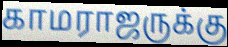
காமராஜருக்கு